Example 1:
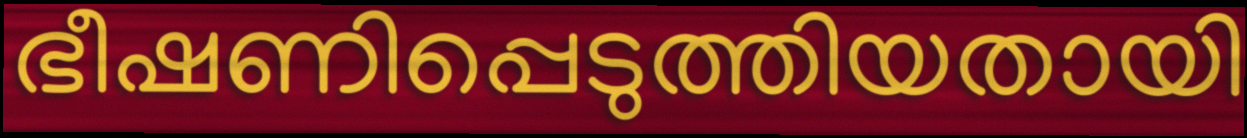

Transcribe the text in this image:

ഭീഷണിപ്പെടുത്തിയതായി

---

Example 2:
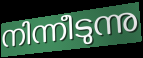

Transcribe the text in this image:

നിന്നീടുന്നു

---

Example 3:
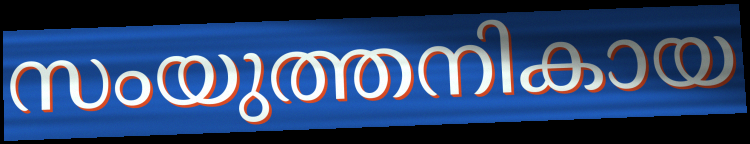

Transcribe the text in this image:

സംയുത്തനികായ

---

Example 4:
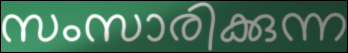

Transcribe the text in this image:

സംസാരിക്കുന്ന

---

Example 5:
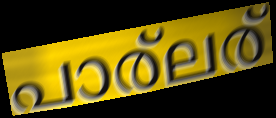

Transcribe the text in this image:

പാര്ലര്